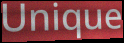
Unique